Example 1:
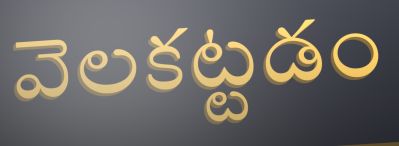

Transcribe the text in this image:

వెలకట్టడం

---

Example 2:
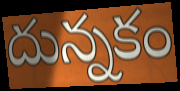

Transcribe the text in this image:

దున్నకం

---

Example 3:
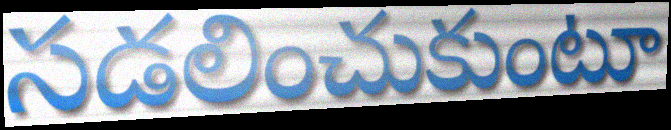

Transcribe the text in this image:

సడలించుకుంటూ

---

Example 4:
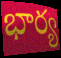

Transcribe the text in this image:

భార్య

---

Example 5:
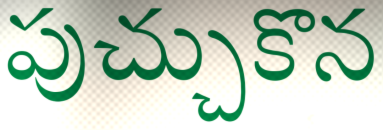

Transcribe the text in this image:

పుచ్చుకొన